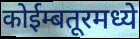
कोईम्बतूरमध्ये